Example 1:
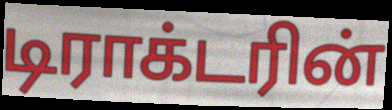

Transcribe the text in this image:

டிராக்டரின்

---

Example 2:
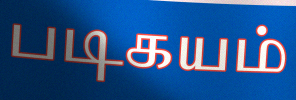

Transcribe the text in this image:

படிகயம்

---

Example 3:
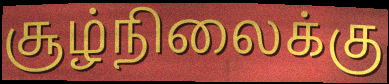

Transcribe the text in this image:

சூழ்நிலைக்கு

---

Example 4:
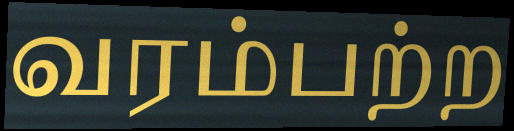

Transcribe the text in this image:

வரம்பற்ற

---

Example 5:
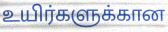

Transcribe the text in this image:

உயிர்களுக்கான